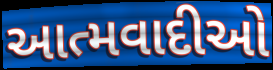
આત્મવાદીઓ